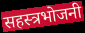
सहस्त्रभोजनी